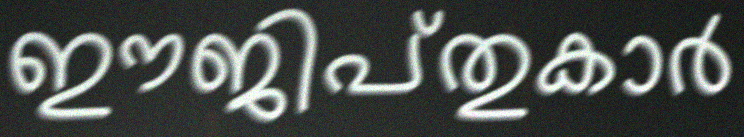
ഈജിപ്‌തുകാർ